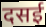
दसई